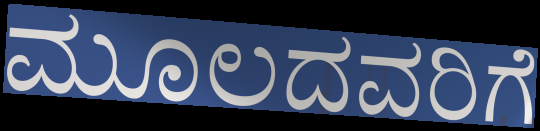
ಮೂಲದವರಿಗೆ